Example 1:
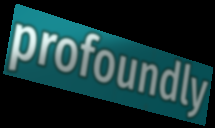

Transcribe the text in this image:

profoundly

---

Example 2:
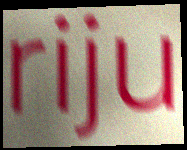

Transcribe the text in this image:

riju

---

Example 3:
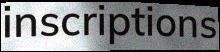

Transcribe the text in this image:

inscriptions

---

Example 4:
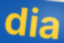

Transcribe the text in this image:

dia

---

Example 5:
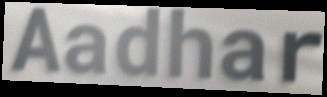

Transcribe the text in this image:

Aadhar